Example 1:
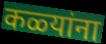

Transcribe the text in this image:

कळ्यांना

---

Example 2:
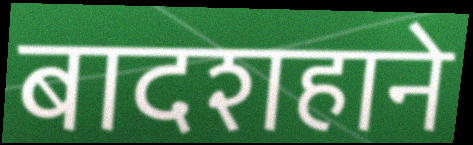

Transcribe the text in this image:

बादशहाने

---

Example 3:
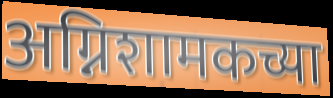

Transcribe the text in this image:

अग्निशामकच्या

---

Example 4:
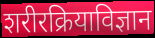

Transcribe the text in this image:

शरीरक्रियाविज्ञान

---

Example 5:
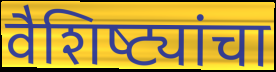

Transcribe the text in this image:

वैशिष्ट्यांचा